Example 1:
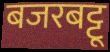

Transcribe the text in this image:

बजरबट्टू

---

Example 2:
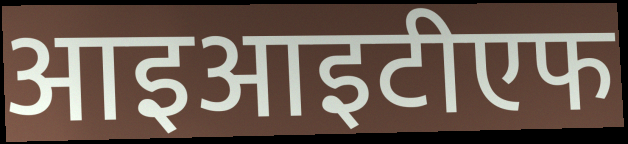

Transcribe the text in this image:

आइआइटीएफ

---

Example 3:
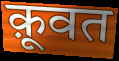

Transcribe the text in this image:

क़ूवत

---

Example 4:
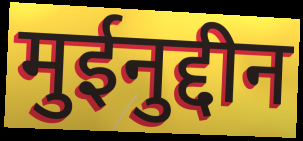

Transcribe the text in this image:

मुईनुद्दीन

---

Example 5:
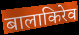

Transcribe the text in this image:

बालाकिरेव